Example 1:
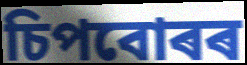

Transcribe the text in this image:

চিপবোৰৰ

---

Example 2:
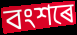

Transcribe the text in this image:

বংশৰে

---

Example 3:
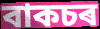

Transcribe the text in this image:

বাকচৰ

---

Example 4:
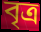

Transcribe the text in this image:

বৃত্ৰ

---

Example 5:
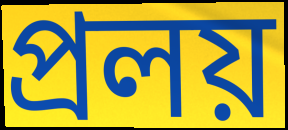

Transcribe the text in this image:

প্ৰলয়